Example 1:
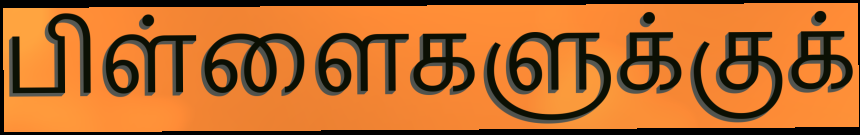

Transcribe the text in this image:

பிள்ளைகளுக்குக்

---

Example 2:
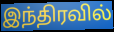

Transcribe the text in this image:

இந்திரவில்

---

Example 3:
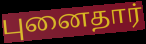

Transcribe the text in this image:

புனைதார்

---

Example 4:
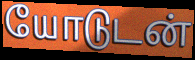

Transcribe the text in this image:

யோடுடன்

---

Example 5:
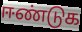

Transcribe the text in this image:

ஈண்டுக